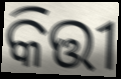
କିତ୍ତୀ